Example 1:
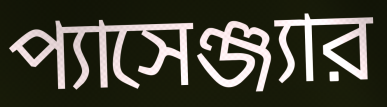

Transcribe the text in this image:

প্যাসেঞ্জ্যার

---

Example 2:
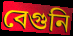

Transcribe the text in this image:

বেগুনি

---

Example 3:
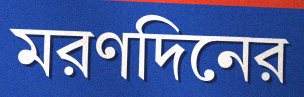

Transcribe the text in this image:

মরণদিনের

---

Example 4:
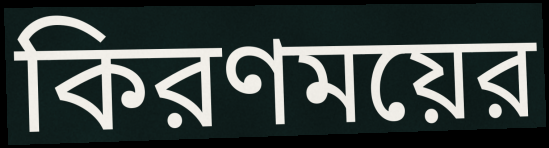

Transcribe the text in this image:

কিরণময়ের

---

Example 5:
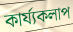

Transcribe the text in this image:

কার্য্যকলাপ